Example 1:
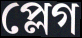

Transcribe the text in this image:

প্লেগ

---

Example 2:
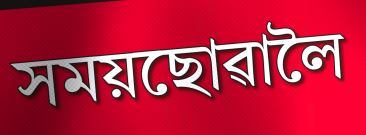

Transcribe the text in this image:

সময়ছোৱালৈ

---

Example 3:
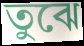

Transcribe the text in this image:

তুঝে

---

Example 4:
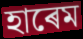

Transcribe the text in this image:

হাৰেম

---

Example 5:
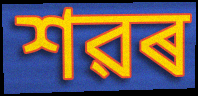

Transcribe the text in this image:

শৱৰ